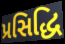
પ્રસિદ્ધિ